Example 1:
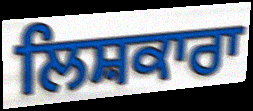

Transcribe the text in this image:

ਲਿਸ਼ਕਾਰਾ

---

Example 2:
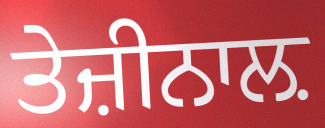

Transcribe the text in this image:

ਤੇਜ਼ੀਨਾਲ਼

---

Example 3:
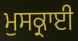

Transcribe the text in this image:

ਮੁਸਕ੍ਰਾਈ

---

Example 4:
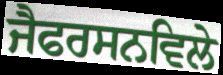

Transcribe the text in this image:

ਜੈਫਰਸਨਵਿਲੇ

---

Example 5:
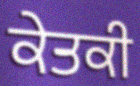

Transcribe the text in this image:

ਕੇਤਕੀ